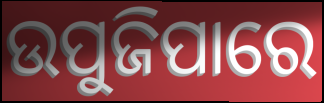
ଉପୁଜିପାରେ